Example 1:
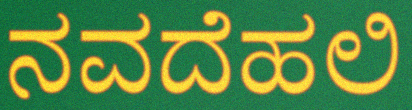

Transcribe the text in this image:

ನವದೆಹಲಿ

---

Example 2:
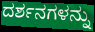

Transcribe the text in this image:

ದರ್ಶನಗಳನ್ನು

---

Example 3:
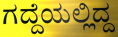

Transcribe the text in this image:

ಗದ್ದೆಯಲ್ಲಿದ್ದ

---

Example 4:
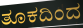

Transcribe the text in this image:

ತೂಕದಿಂದ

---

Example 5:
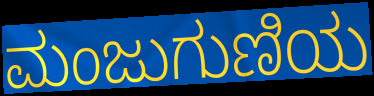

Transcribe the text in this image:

ಮಂಜುಗುಣಿಯ